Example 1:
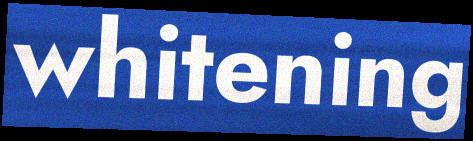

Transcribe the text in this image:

whitening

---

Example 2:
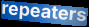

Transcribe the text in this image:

repeaters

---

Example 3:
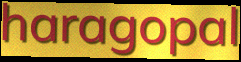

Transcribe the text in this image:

haragopal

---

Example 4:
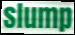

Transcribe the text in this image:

slump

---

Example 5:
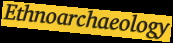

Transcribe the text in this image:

Ethnoarchaeology